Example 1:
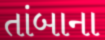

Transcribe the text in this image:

તાંબાના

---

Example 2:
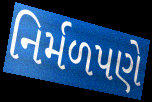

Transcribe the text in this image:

નિર્મળપણે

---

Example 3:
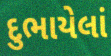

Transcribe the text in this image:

દુભાયેલાં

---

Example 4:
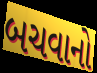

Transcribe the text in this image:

બચવાનો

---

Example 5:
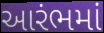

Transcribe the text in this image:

આરંભમાં